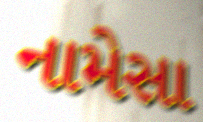
નામેસા